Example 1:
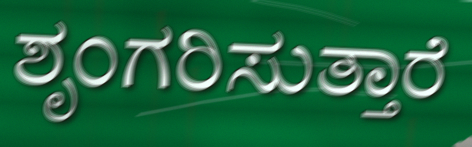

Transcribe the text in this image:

ಶೃಂಗರಿಸುತ್ತಾರೆ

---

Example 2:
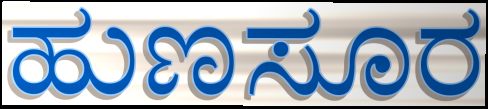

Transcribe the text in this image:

ಹುಣಸೂರ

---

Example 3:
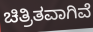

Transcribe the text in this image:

ಚಿತ್ರಿತವಾಗಿವೆ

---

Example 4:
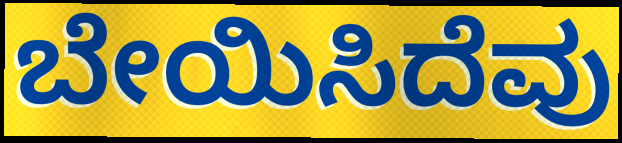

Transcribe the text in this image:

ಬೇಯಿಸಿದೆವು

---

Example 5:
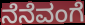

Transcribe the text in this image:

ನೆನೆವಂಗೆ